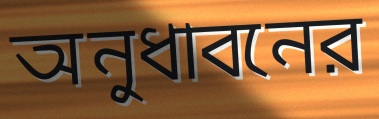
অনুধাবনের